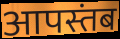
आपस्तंब